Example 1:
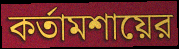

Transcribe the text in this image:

কর্তামশায়ের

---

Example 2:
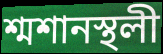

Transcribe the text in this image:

শ্মশানস্থলী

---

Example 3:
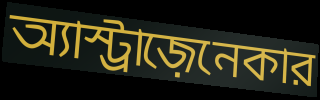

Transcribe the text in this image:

অ্যাস্ট্রাজ়েনেকার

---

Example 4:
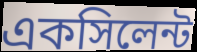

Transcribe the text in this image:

একসিলেন্ট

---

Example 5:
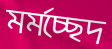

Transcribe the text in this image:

মর্মচ্ছেদ